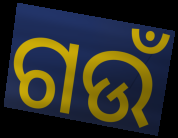
ଗଉଁ